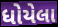
ધોયેલા